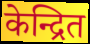
केन्द्रित